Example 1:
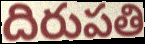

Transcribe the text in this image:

దిరుపతి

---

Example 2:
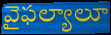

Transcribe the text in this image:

వైఫల్యాలూ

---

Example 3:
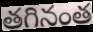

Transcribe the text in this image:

తగినంత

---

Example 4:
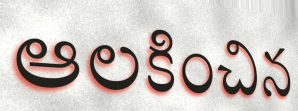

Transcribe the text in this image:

ఆలకించిన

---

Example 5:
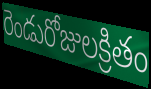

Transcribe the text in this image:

రెండురోజులక్రితం